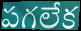
పగలేక